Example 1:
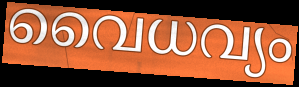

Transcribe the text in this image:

വൈധവ്യം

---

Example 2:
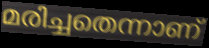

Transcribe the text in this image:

മരിച്ചതെന്നാണ്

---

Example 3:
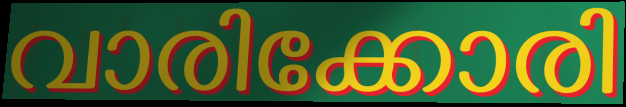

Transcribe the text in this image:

വാരിക്കോരി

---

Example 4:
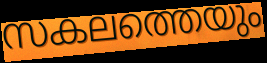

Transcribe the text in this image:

സകലത്തെയും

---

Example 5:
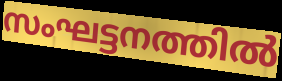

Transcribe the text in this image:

സംഘട്ടനത്തിൽ